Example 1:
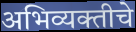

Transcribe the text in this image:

अभिव्यक्तीचे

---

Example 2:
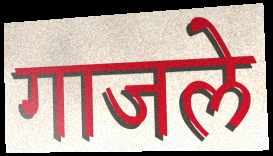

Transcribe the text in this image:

गाजले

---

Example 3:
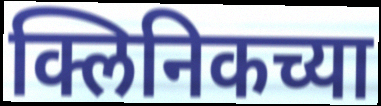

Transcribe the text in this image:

क्लिनिकच्या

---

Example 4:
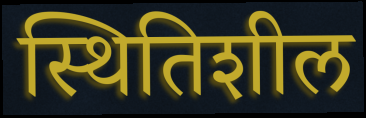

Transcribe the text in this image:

स्थितिशील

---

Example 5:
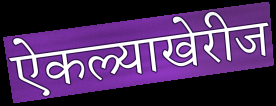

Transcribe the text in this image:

ऐकल्याखेरीज